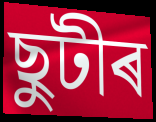
ছুটীৰ